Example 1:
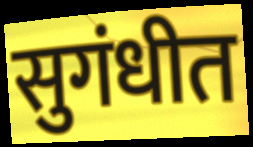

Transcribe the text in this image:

सुगंधीत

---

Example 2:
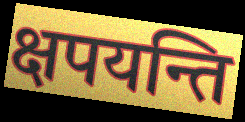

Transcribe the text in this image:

क्षपयन्ति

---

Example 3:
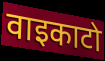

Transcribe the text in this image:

वाइकाटो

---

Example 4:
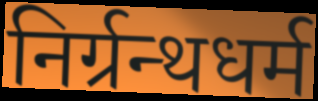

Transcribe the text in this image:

निर्ग्रन्थधर्म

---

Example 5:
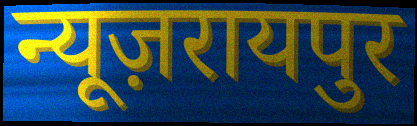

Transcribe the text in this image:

न्यूज़रायपुर